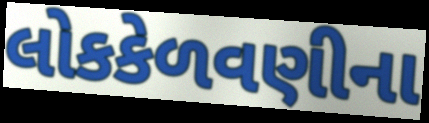
લોકકેળવણીના